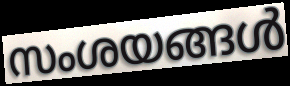
സംശയങ്ങൾ